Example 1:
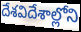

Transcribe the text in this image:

దేశవిదేశాల్లోని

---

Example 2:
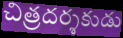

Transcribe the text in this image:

చిత్రదర్శకుడు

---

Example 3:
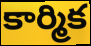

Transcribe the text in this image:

కార్మిక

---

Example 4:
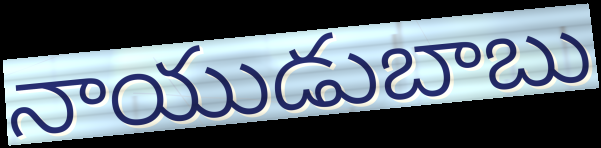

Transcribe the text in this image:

నాయుడుబాబు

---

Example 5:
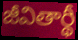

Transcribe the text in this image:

జీవితార్థీ